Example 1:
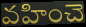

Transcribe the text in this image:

వహించె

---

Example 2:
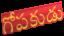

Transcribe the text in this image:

గోపకుడు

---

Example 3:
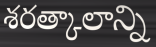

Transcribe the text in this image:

శరత్కాలాన్ని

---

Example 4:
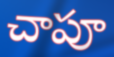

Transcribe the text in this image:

చాపూ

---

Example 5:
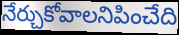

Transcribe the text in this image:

నేర్చుకోవాలనిపించేది